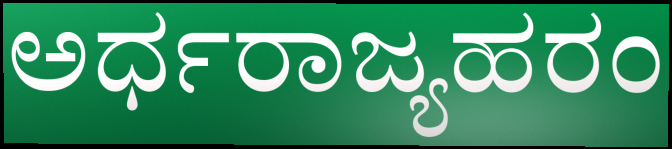
ಅರ್ಧರಾಜ್ಯಹರಂ